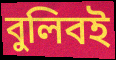
বুলিবই